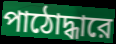
পাঠোদ্ধারে